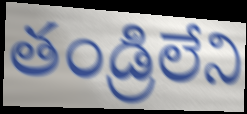
తండ్రిలేని